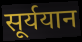
सूर्ययान